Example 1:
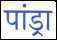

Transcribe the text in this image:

पांड्रा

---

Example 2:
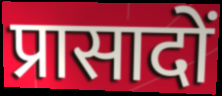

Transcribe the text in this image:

प्रासादों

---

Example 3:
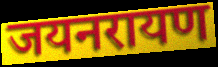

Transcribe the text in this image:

जयनरायण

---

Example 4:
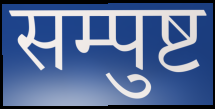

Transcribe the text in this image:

सम्पुष्ट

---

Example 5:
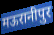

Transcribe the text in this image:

मऊरानीपुर